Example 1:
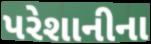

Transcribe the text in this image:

પરેશાનીના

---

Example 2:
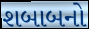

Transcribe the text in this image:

શબાબનો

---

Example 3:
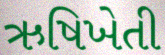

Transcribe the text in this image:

ઋષિખેતી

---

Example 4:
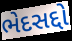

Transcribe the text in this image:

ભેદસદ્દો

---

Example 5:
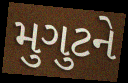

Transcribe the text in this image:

મુગુટને